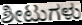
ಶೀಟುಗಳು